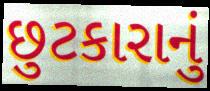
છુટકારાનું